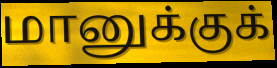
மானுக்குக்